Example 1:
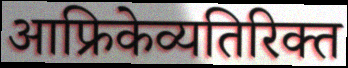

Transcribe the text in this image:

आफ्रिकेव्यतिरिक्त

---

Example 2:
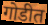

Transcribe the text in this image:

गोडीत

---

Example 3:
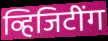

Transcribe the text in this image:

व्हिजिटींग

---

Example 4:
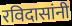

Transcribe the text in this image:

रविदासांनी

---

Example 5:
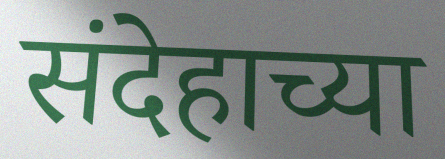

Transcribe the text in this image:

संदेहाच्या